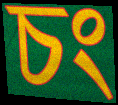
চং